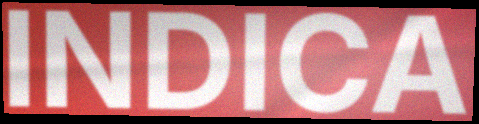
INDICA